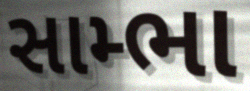
સામ્ભા